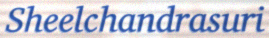
Sheelchandrasuri